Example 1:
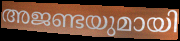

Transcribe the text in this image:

അജണ്ടയുമായി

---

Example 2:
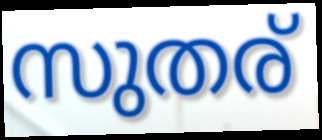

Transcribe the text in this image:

സുതര്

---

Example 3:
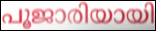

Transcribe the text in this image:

പൂജാരിയായി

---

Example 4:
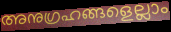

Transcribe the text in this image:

അനുഗ്രഹങ്ങളെല്ലാം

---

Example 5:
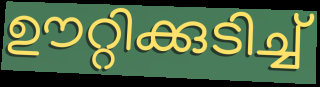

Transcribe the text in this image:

ഊറ്റിക്കുടിച്ച്